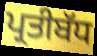
ਪ੍ਰਤੀਬੱਧ